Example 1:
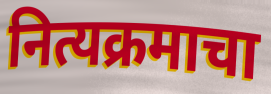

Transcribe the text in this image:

नित्यक्रमाचा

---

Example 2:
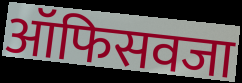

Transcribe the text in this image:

ऑफिसवजा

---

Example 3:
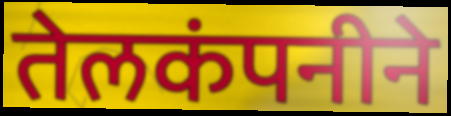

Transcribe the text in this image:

तेलकंपनीने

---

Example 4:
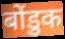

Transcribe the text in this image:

बोंडुक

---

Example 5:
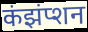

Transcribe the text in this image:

कंझंप्शन